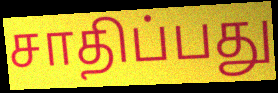
சாதிப்பது